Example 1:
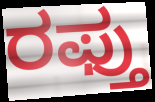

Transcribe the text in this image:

ರಫ್ತು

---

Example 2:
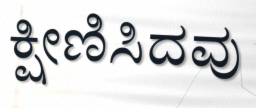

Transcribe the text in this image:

ಕ್ಷೀಣಿಸಿದವು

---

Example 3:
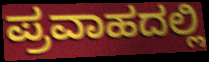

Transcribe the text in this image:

ಪ್ರವಾಹದಲ್ಲಿ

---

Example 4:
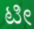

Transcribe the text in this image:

ಟೀ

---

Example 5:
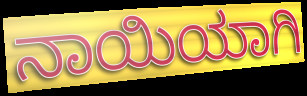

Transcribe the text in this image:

ನಾಯಿಯಾಗಿ